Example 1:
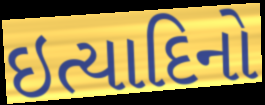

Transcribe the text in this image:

ઇત્યાદિનો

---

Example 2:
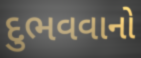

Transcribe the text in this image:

દુભવવાનો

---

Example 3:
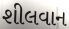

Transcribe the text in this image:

શીલવાન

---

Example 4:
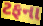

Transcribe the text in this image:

ટફના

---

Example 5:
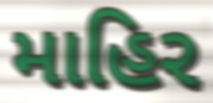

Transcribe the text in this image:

માહિર